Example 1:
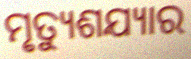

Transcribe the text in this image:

ମୃତ୍ୟୁଶଯ୍ୟାର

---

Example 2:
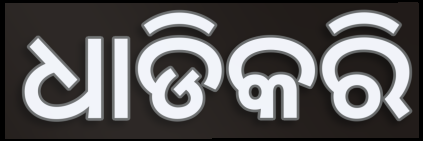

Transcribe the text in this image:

ଧାଡିକରି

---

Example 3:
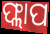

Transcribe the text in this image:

ଫ୍ଲାପ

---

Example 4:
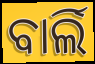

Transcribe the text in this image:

ବାର୍ଲି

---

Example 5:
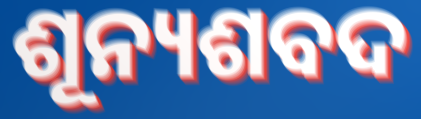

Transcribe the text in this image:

ଶୂନ୍ୟଶବଦ